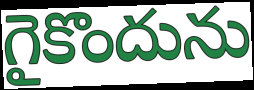
గైకొందును